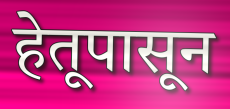
हेतूपासून